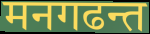
मनगढन्त